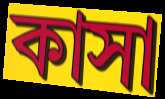
কাসা